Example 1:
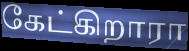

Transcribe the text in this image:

கேட்கிறாரா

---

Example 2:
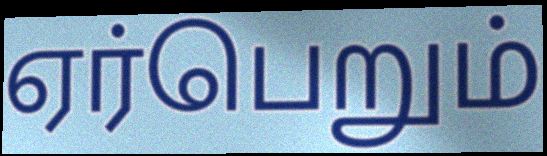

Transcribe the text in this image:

ஏர்பெறும்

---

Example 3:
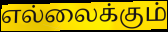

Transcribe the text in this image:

எல்லைக்கும்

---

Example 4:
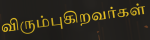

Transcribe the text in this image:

விரும்புகிறவர்கள்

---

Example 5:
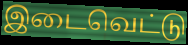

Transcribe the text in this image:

இடைவெட்டு